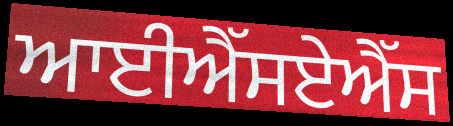
ਆਈਐੱਸਏਐੱਸ